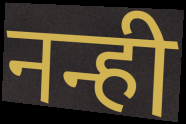
नन्ही